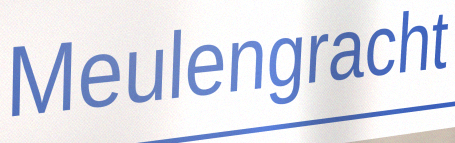
Meulengracht